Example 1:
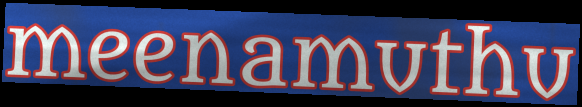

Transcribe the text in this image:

meenamuthu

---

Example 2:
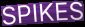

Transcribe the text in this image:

SPIKES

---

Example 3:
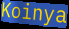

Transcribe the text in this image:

Koinya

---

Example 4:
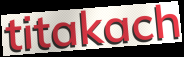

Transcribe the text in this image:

titakach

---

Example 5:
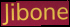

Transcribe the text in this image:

Jibone